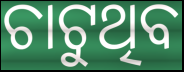
ଚାଟୁଥିବ